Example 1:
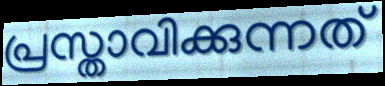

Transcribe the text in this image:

പ്രസ്താവിക്കുന്നത്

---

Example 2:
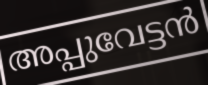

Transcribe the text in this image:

അപ്പുവേട്ടൻ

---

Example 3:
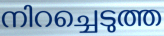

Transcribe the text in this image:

നിറച്ചെടുത്ത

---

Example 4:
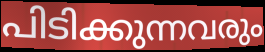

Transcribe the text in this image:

പിടിക്കുന്നവരും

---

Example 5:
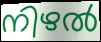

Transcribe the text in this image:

നിഴൽ